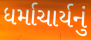
ધર્માચાર્યનું